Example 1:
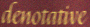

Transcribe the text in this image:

denotative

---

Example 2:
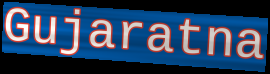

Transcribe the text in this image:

Gujaratna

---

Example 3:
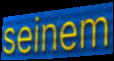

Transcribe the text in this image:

seinem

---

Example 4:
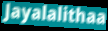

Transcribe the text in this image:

Jayalalithaa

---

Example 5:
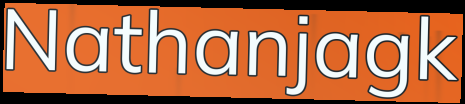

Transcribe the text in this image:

Nathanjagk